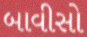
બાવીસો